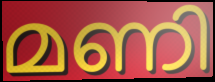
മണി